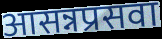
आसन्नप्रसवा